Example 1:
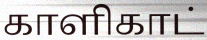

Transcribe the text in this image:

காளிகாட்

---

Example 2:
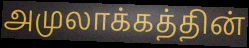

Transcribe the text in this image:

அமுலாக்கத்தின்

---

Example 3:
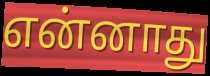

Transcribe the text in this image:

என்னாது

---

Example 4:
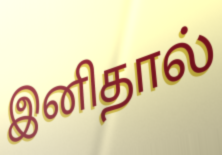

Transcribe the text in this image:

இனிதால்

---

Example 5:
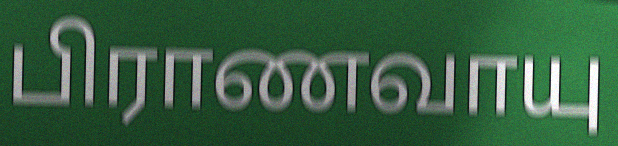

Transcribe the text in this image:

பிராணவாயு